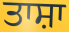
ਤਾਸ਼ਾ